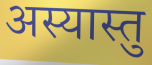
अस्यास्तु